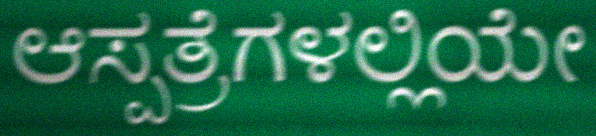
ಆಸ್ಪತ್ರೆಗಳಲ್ಲಿಯೇ